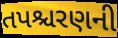
તપશ્ચરણની